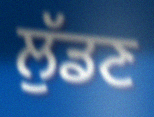
ਲੁੱਡਣ